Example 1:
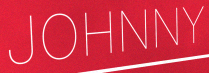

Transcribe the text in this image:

JOHNNY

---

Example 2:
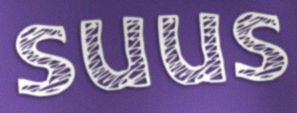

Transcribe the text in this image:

suus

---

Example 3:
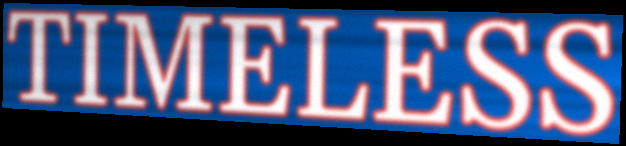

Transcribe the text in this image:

TIMELESS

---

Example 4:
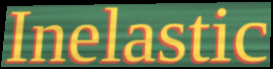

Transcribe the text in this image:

Inelastic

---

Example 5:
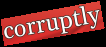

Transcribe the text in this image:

corruptly